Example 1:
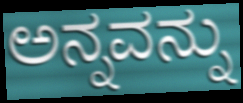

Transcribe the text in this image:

ಅನ್ನವನ್ನು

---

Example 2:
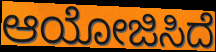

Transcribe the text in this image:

ಆಯೋಜಿಸಿದೆ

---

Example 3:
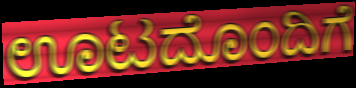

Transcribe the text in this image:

ಊಟದೊಂದಿಗೆ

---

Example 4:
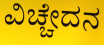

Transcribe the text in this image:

ವಿಚ್ಚೇದನ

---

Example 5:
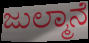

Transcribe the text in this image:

ಜುಲ್ಮಾನೆ